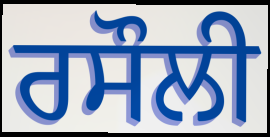
ਰਸੌਲੀ